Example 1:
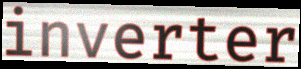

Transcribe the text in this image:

inverter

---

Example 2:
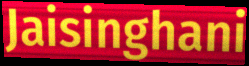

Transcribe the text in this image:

Jaisinghani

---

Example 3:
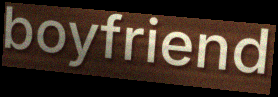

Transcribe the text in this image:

boyfriend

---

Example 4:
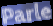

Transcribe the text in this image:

Parle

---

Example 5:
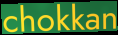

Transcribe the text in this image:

chokkan